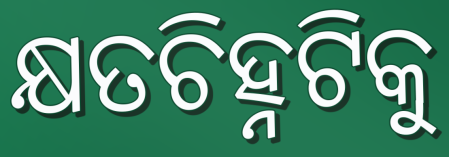
କ୍ଷତଚିହ୍ନଟିକୁ